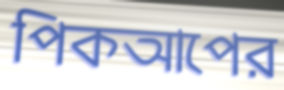
পিকআপের